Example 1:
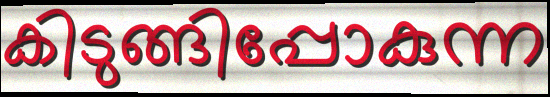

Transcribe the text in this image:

കിടുങ്ങിപ്പോകുന്ന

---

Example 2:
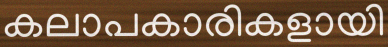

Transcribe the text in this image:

കലാപകാരികളായി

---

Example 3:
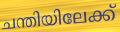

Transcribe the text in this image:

ചന്തിയിലേക്ക്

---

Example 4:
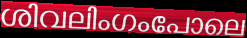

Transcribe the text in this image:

ശിവലിംഗംപോലെ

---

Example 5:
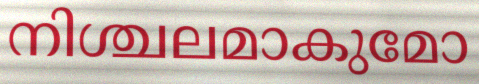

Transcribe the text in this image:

നിശ്ചലമാകുമോ